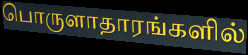
பொருளாதாரங்களில்